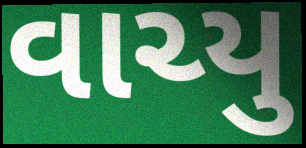
વાચ્યુ